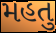
મહતુ